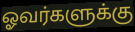
ஓவர்களுக்கு